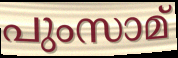
പുംസാമ്